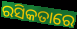
ରସିକତାରେ